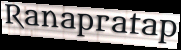
Ranapratap